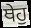
ਥੇਹੁ